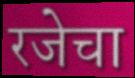
रजेचा